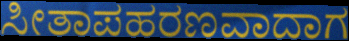
ಸೀತಾಪಹರಣವಾದಾಗ